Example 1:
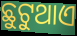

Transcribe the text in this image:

ଛୁଟୁଥାଏ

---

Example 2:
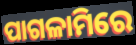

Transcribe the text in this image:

ପାଗଳାମିରେ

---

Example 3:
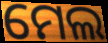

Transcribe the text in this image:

ମେଲ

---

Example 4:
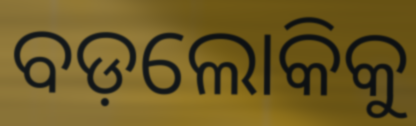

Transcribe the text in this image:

ବଡ଼ଲୋକିକୁ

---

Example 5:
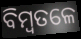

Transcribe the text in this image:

ବିମ୍ବତଳେ